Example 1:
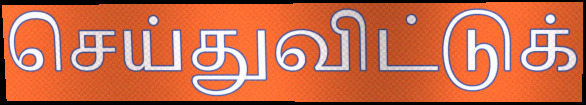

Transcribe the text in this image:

செய்துவிட்டுக்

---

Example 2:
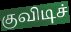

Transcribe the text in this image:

குவிடிச்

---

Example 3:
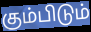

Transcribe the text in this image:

கும்பிடும்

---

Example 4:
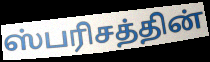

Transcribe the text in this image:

ஸ்பரிசத்தின்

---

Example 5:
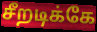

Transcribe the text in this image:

சீறடிக்கே